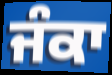
ਜੰਕਾ